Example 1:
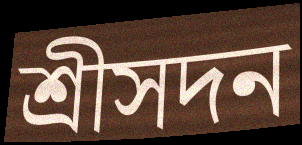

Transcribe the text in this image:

শ্রীসদন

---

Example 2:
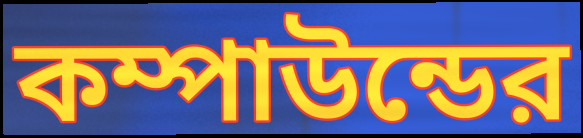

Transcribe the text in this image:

কম্পাউন্ডের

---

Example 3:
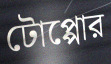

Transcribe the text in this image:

টোপ্পোর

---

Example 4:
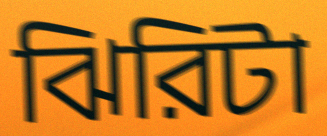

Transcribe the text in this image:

ঝিরিটা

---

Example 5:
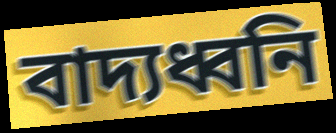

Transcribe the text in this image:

বাদ্যধ্বনি